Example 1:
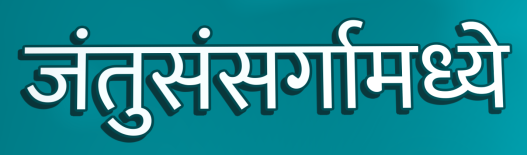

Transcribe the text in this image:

जंतुसंसर्गामध्ये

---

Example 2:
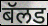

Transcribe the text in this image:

बॅलड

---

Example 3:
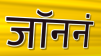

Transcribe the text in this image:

जॉननं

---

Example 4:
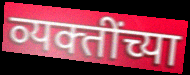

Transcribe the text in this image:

व्‍यक्‍तींच्‍या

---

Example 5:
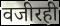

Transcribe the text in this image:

वजीरही